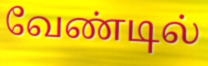
வேண்டில்